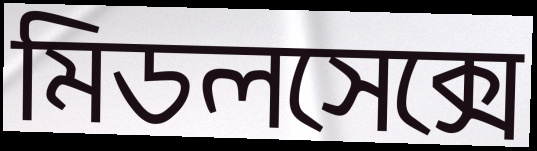
মিডলসেক্সে